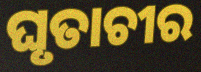
ଘୃତାଚୀର